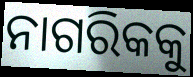
ନାଗରିକକୁ